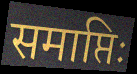
समाप्तिः